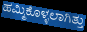
ಹಮ್ಮಿಕೊಳ್ಳಲಾಗಿತ್ತು